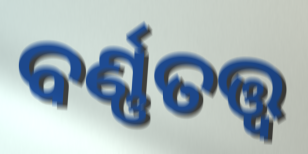
ବର୍ଣ୍ଣତତ୍ତ୍ଵ